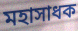
মহাসাধক